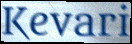
Kevari